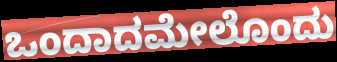
ಒಂದಾದಮೇಲೊಂದು